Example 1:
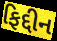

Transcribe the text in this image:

ફિદ્દીન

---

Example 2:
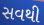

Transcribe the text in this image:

સવથી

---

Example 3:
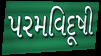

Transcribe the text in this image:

પરમવિદૂષી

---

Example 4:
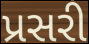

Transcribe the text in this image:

પ્રસરી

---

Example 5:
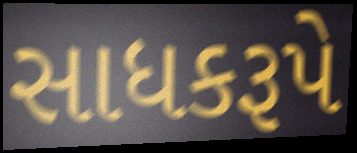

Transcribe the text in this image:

સાધકરૂપે